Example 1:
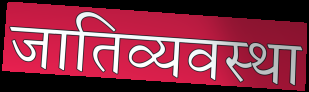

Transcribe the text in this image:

जातिव्यवस्था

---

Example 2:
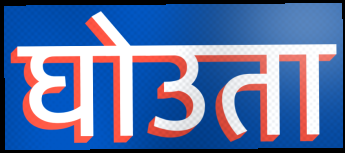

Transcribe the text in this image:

घोउता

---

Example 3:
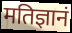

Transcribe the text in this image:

मतिज्ञानं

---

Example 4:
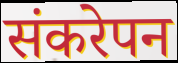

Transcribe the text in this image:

संकरेपन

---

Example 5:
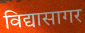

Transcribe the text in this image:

विद्यासागर